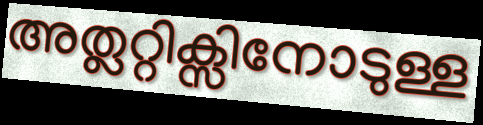
അത്ലറ്റിക്സിനോടുള്ള